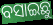
ବସାଇଛୁ